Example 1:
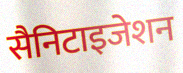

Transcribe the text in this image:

सैनिटाइजेशन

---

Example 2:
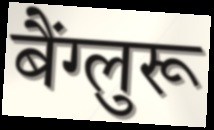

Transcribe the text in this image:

बैंग्लुरू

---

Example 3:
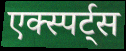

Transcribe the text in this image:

एक्स्पर्ट्स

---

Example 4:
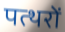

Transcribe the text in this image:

पत्‍थरों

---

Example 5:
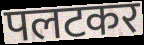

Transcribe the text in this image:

पलटकर